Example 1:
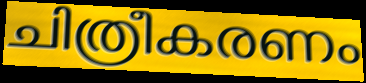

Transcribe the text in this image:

ചിത്രീകരണം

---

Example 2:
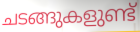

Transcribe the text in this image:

ചടങ്ങുകളുണ്ട്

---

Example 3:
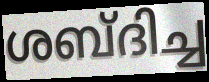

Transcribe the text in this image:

ശബ്ദിച്ച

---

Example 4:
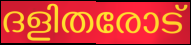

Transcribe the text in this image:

ദളിതരോട്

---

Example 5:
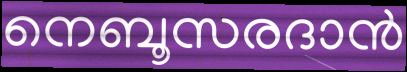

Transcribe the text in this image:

നെബൂസരദാൻ